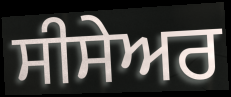
ਸੀਸੇਅਰ